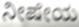
ನೀಷೇಯ